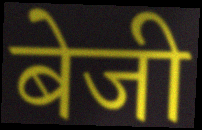
बेजी